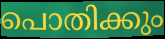
പൊതിക്കും